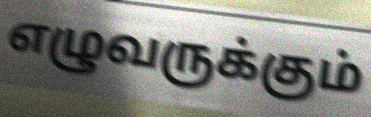
எழுவருக்கும்